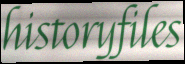
historyfiles